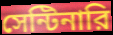
সেন্টিনারি